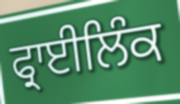
ਫ੍ਰਾਈਲਿੰਕ